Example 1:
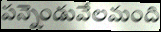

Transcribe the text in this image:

పన్నెండువేలమంది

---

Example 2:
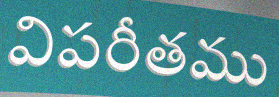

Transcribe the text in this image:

విపరీతము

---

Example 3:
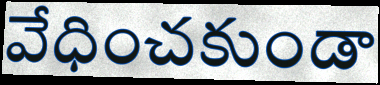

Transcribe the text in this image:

వేధించకుండా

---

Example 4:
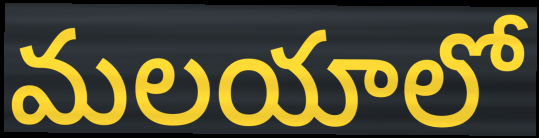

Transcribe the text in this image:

మలయాలో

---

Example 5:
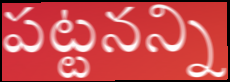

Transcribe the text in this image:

పట్టనన్ని